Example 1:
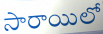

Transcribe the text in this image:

సారాయిలో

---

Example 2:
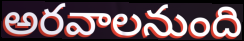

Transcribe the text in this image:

అరవాలనుంది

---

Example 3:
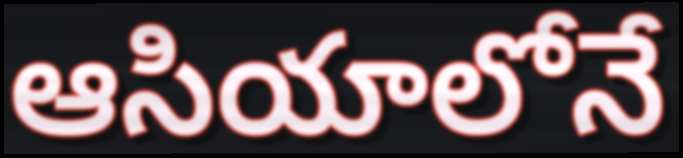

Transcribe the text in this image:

ఆసియాలోనే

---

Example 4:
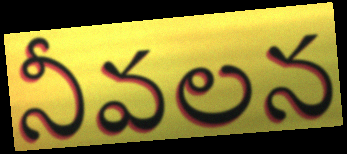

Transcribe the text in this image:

నీవలన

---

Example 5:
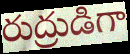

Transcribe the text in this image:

రుద్రుడిగా